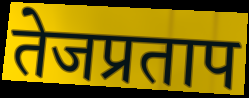
तेजप्रताप